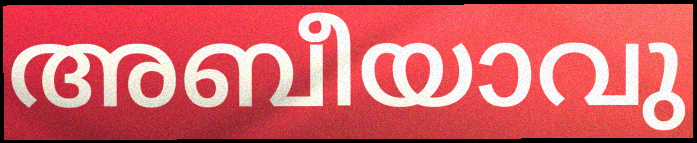
അബീയാവു